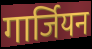
गार्जियन